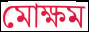
মোক্ষম